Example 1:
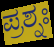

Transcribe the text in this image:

ಪ್ರಶ್ನಃ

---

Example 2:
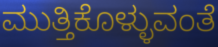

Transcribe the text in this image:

ಮುತ್ತಿಕೊಳ್ಳುವಂತೆ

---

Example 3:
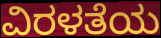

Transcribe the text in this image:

ವಿರಳತೆಯ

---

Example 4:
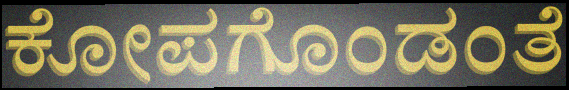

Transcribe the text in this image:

ಕೋಪಗೊಂಡಂತೆ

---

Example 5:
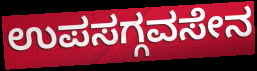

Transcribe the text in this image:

ಉಪಸಗ್ಗವಸೇನ